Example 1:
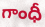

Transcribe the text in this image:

గాంధీ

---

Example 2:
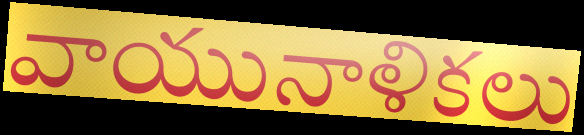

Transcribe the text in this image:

వాయునాళికలు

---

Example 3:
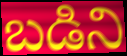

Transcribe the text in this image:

బడిని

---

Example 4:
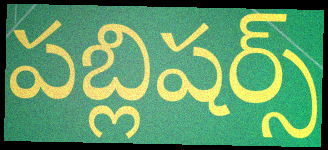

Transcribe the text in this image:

పబ్లిషర్స్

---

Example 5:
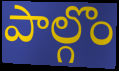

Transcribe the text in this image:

పాల్గొం